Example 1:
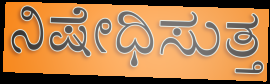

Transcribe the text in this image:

ನಿಷೇಧಿಸುತ್ತ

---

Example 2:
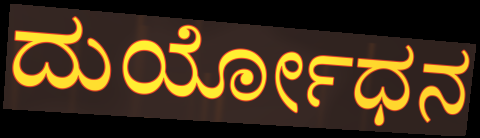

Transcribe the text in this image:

ದುರ್ಯೋಧನ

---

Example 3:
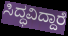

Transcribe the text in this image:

ಸಿದ್ಧವಿದ್ದಾರೆ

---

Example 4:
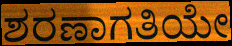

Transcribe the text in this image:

ಶರಣಾಗತಿಯೇ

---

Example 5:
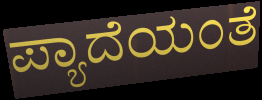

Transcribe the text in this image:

ಪ್ಯಾದೆಯಂತೆ